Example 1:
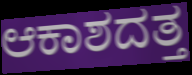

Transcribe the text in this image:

ಆಕಾಶದತ್ತ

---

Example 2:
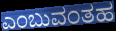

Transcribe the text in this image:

ಎಂಬುವಂತಹ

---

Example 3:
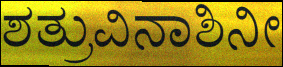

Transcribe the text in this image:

ಶತ್ರುವಿನಾಶಿನೀ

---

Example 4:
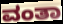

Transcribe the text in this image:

ವಂತಾ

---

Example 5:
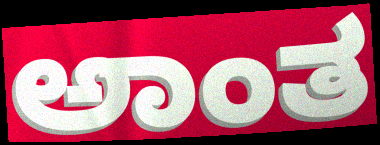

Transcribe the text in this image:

ಅಾಂತ